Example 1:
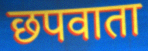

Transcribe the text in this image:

छपवाता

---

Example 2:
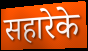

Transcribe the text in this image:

सहारेके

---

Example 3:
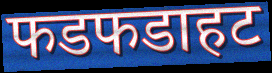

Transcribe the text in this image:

फडफडाहट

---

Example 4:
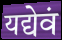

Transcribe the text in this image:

यद्येवं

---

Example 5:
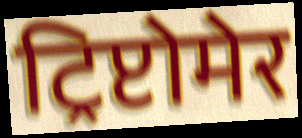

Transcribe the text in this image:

ट्रिप्टोमेर